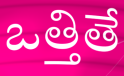
ఒత్తితే